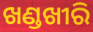
ଖଣ୍ଡଖୀରି